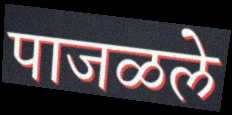
पाजळले